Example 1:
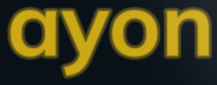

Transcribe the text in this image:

ayon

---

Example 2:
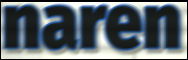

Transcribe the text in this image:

naren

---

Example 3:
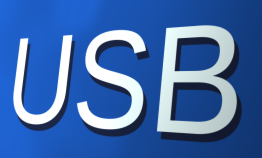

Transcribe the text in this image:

USB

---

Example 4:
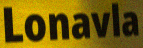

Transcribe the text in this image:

Lonavla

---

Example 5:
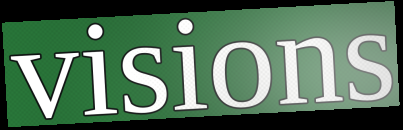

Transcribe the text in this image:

visions